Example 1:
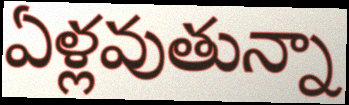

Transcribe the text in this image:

ఏళ్లవుతున్నా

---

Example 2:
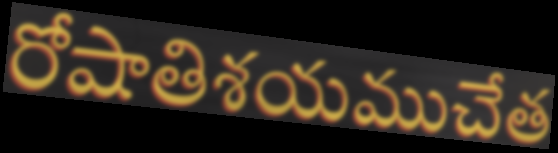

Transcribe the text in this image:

రోషాతిశయముచేత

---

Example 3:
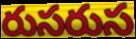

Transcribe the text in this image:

రుసరుస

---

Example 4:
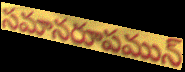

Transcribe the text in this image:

సమానరూపమున్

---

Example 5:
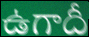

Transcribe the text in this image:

ఉగాదీ